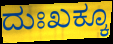
ದುಃಖಕ್ಕೂ